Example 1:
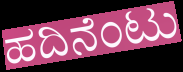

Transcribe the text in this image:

ಹದಿನೆಂಟು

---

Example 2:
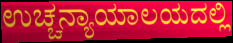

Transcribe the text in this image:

ಉಚ್ಚನ್ಯಾಯಾಲಯದಲ್ಲಿ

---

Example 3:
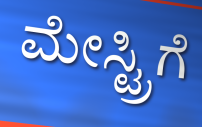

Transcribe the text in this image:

ಮೇಸ್ಟ್ರಿಗೆ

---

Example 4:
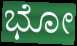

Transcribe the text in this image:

ಭೋ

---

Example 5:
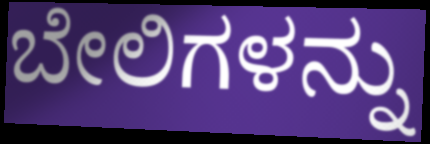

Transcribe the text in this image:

ಬೇಲಿಗಳನ್ನು